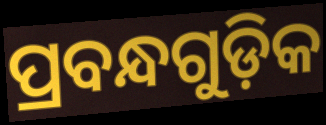
ପ୍ରବନ୍ଧଗୁଡ଼ିକ